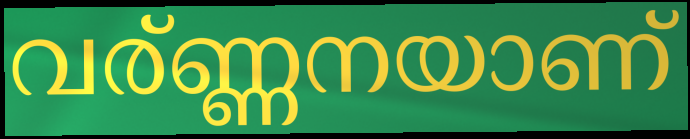
വര്ണ്ണനയാണ്